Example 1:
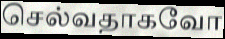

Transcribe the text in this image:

செல்வதாகவோ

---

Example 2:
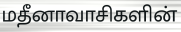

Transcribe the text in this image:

மதீனாவாசிகளின்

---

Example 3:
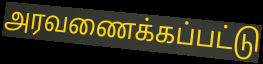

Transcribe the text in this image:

அரவணைக்கப்பட்டு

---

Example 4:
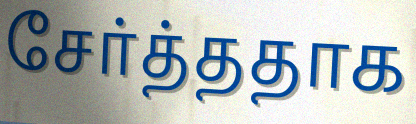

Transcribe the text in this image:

சேர்த்ததாக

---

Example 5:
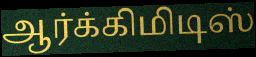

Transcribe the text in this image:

ஆர்க்கிமிடிஸ்